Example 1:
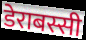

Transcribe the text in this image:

डेराबस्सी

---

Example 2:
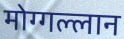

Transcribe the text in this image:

मोग्गल्लान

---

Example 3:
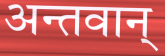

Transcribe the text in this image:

अन्तवान्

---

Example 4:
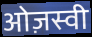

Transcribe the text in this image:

ओज़स्वी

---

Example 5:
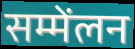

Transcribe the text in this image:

सम्मेंलन